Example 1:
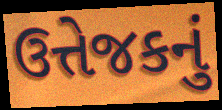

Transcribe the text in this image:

ઉત્તેજકનું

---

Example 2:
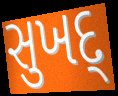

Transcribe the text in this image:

સુખદ્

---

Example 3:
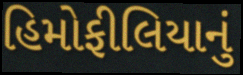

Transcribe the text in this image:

હિમોફીલિયાનું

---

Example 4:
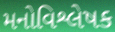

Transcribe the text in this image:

મનોવિશ્લેષક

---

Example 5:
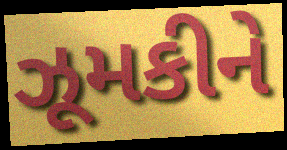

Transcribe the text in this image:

ઝૂમકીને